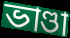
ভাণ্ডা